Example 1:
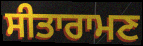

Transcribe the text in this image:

ਸੀਤਾਰਾਮਣ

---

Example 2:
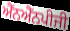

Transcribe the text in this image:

ਐੱਨਐੱਨਪੀਜੀ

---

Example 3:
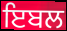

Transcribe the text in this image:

ਇਬਲ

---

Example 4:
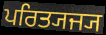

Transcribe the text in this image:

ਪਰਿਤ੍ਯਜ੍ਯ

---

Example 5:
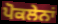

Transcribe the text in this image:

ਪੋਕਲੇਨਾਂ